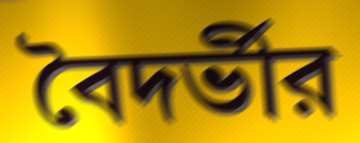
বৈদর্ভীর